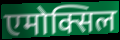
एमोक्सिल